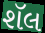
શૅલ